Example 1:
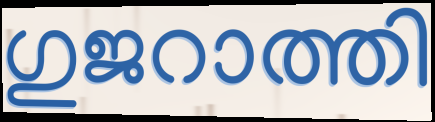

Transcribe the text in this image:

ഗുജറാത്തി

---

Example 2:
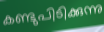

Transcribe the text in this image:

കണ്ടുപിടിക്കുന്നു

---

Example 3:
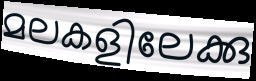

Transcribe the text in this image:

മലകളിലേക്കു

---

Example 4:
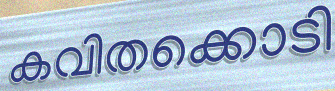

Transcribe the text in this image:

കവിതക്കൊടി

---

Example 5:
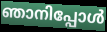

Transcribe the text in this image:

ഞാനിപ്പോൾ